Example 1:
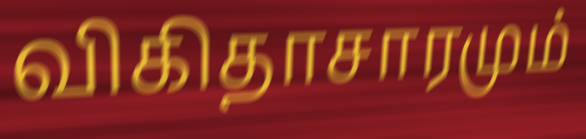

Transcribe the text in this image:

விகிதாசாரமும்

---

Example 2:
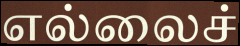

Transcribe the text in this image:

எல்லைச்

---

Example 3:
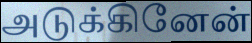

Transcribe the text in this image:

அடுக்கினேன்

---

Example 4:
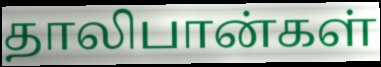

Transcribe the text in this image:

தாலிபான்கள்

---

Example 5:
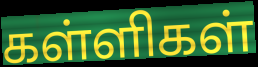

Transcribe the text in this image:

கள்ளிகள்